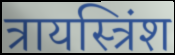
त्रायस्त्रिंश